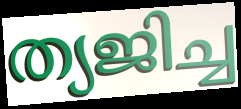
ത്യജിച്ച